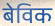
बेविक